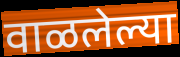
वाळलेल्या